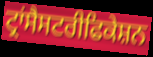
ਟ੍ਰਾਂਸੈਸਟਰੀਫਿਕੇਸ਼ਨ